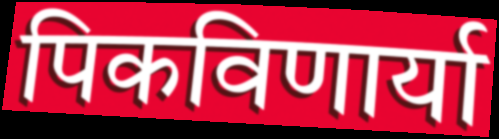
पिकविणार्या